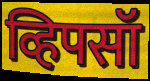
व्हिपसॉ